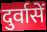
दुर्वासें